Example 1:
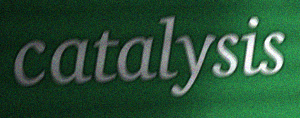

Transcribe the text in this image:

catalysis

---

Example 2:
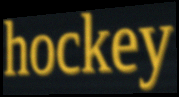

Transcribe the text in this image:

hockey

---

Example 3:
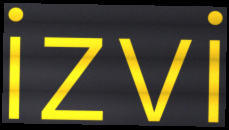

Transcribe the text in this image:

izvi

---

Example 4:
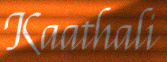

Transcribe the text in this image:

Kaathali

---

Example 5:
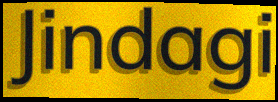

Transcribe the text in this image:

Jindagi